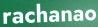
rachanao